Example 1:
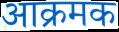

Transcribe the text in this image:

आक्रमक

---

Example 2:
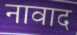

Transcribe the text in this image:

नावाद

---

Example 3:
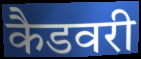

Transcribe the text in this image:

कैडवरी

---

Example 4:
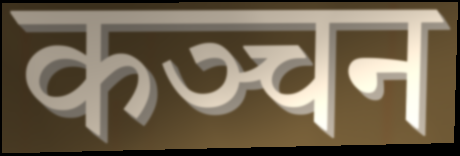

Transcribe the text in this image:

कञ्चन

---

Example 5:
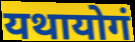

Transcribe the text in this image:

यथायोगं